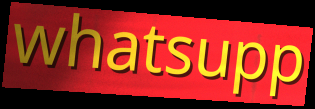
whatsupp